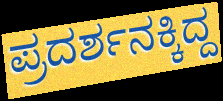
ಪ್ರದರ್ಶನಕ್ಕಿದ್ದ